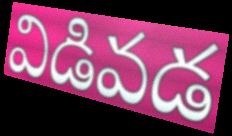
విడివడ